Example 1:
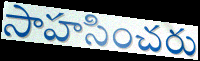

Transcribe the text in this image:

సాహసించరు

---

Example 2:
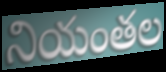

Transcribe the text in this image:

నియంతల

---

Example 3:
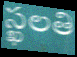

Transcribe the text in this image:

స్ఖలతి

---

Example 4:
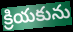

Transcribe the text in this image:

క్రియకును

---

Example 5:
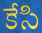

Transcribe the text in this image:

కేసి